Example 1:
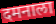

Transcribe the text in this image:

दमनाला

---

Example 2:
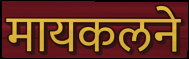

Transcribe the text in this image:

मायकलने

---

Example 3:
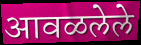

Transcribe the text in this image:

आवळलेले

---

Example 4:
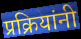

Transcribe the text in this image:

प्रक्रियांनी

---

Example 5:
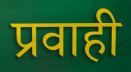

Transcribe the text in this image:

प्रवाही